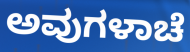
ಅವುಗಳಾಚೆ